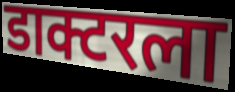
डाक्टरला